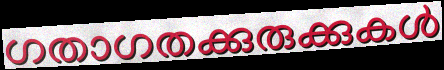
ഗതാഗതക്കുരുക്കുകൾ